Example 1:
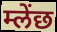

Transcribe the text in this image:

म्लेंछ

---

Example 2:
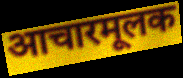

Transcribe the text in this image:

आचारमूलक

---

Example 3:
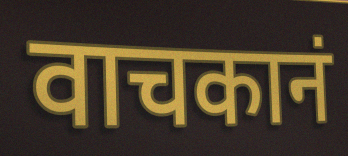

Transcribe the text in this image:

वाचकानं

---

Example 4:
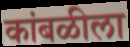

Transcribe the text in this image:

कांबळीला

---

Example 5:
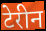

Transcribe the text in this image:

टेरीन